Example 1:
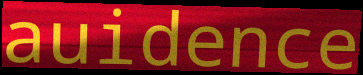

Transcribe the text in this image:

auidence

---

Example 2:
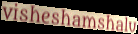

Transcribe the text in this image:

visheshamshalu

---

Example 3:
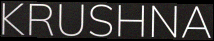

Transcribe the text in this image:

KRUSHNA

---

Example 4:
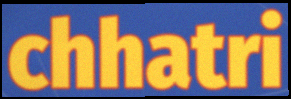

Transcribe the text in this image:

chhatri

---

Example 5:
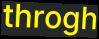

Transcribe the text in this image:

throgh